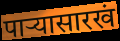
पाऱ्यासारखं